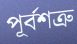
পূর্বশত্রু